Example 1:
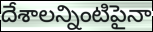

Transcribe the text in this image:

దేశాలన్నింటిపైనా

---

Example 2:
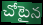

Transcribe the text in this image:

చోటైన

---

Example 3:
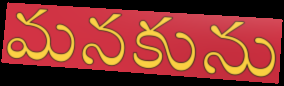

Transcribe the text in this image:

మనకును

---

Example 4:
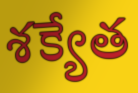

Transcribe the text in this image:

శక్యేత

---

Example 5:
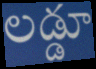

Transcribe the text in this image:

లడ్డూ